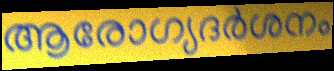
ആരോഗ്യദർശനം